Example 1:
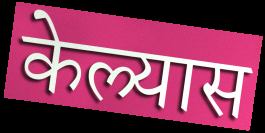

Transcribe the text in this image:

केल्यास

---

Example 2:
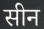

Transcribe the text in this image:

सीन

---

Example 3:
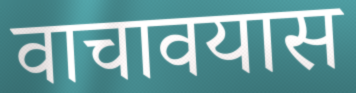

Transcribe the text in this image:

वाचावयास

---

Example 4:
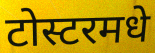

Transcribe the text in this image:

टोस्टरमधे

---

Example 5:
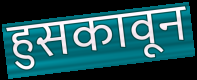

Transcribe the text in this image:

हुसकावून